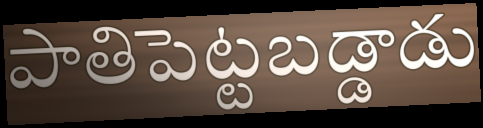
పాతిపెట్టబడ్డాడు